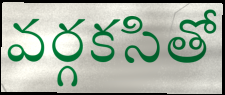
వర్గకసితో